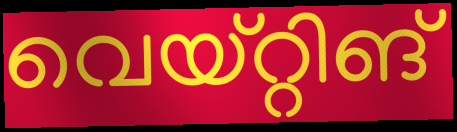
വെയ്റ്റിങ്